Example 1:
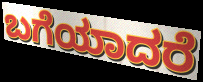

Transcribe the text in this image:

ಬಗೆಯಾದರೆ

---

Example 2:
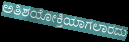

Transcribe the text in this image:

ಅತಿಶಯೋಕ್ತಿಯಾಗಲಾರದು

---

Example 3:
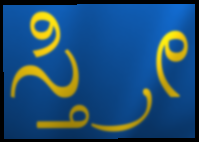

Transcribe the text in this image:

ಸ್ತ್ರೀ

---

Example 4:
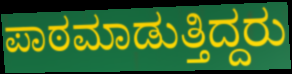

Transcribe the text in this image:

ಪಾಠಮಾಡುತ್ತಿದ್ದರು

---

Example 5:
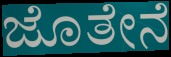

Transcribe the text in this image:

ಜೊತೇನೆ